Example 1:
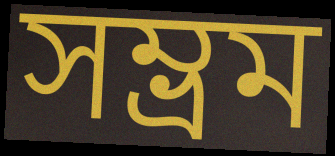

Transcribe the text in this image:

সম্ভ্রম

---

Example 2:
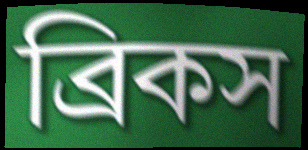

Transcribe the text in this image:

ব্রিকস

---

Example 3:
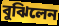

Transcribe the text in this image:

বুঝিলেন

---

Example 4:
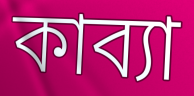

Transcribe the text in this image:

কাব্যা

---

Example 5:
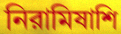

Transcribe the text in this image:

নিরামিষাশি